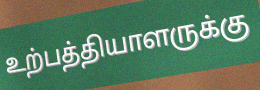
உற்பத்தியாளருக்கு